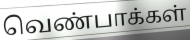
வெண்பாக்கள்